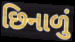
છિનાળું